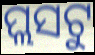
ପ୍ଲସଟୁ